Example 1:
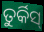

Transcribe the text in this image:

ତୁର୍କିସ୍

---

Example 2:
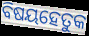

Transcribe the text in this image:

ବିଷୟହେତୁକ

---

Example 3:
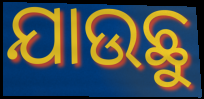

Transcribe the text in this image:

ଯାଉଛୁ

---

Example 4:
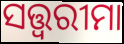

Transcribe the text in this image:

ସତ୍ତ୍ୱରୀମା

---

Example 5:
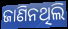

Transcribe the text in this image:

ଜାଣିନଥିଲି